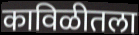
काविळीतला